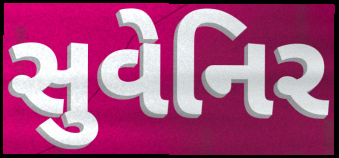
સુવેનિર